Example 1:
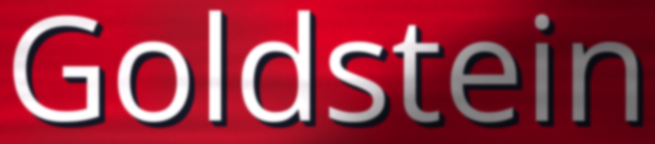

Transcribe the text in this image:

Goldstein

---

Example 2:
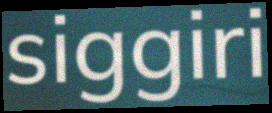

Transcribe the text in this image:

siggiri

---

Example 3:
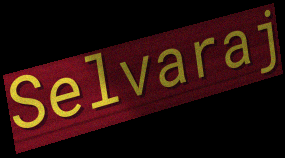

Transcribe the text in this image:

Selvaraj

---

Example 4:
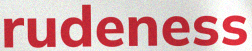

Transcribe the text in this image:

rudeness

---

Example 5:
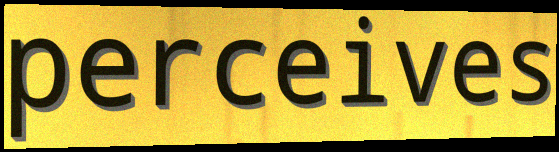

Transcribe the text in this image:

perceives